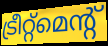
ട്രീറ്റ്മെന്റ്